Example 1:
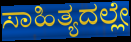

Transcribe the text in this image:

ಸಾಹಿತ್ಯದಲ್ಲೇ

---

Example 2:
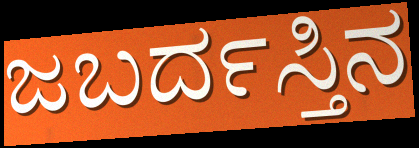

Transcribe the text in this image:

ಜಬರ್ದಸ್ತಿನ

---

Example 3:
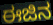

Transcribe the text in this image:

ಈಜಿನ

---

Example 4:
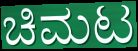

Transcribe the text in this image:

ಚಿಮಟ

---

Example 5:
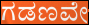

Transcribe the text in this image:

ಗಡಣವೇ